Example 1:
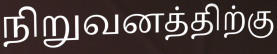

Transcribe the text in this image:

நிறுவனத்திற்கு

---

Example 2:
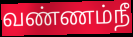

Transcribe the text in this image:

வண்ணம்நீ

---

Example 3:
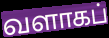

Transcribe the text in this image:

வளாகப்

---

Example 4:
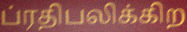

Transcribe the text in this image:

ப்ரதிபலிக்கிற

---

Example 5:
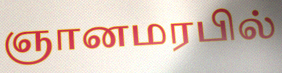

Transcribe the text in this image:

ஞானமரபில்